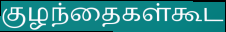
குழந்தைகள்கூட